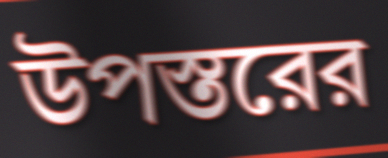
উপস্তরের